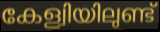
കേള്വിയിലുണ്ട്